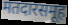
मतदारसमूह